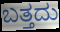
ಬತ್ತದು